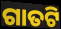
ଗାତଟି